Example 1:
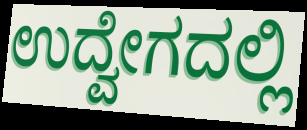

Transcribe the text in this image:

ಉದ್ವೇಗದಲ್ಲಿ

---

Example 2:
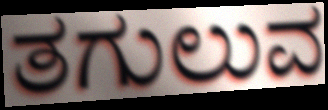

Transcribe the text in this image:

ತಗುಲುವ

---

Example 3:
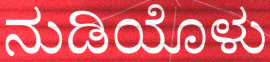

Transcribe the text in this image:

ನುಡಿಯೊಳು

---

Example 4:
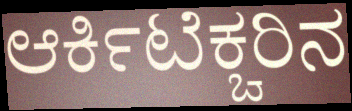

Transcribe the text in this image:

ಆರ್ಕಿಟೆಕ್ಚರಿನ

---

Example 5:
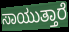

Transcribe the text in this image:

ಸಾಯುತ್ತಾರೆ